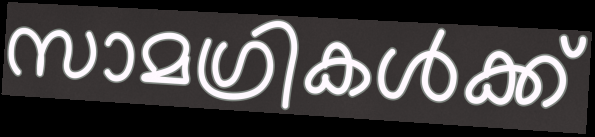
സാമഗ്രികൾക്ക്